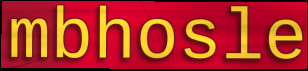
mbhosle